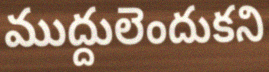
ముద్దులెందుకని